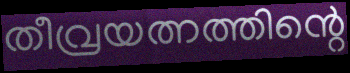
തീവ്രയത്നത്തിന്റെ